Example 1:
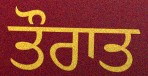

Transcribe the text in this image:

ਤੌਰਾਤ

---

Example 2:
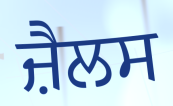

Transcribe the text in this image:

ਜ਼ੈਲਸ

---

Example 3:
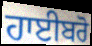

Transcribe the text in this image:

ਹਾਈਬਰੋ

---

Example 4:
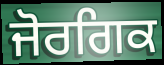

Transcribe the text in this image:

ਜੋਰਗਿਕ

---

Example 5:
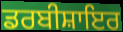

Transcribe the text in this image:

ਡਰਬੀਸ਼ਾਇਰ